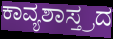
ಕಾವ್ಯಶಾಸ್ತ್ರದ